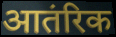
आतंरिक